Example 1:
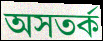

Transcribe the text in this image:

অসতর্ক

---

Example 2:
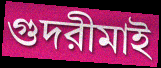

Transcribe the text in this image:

গুদরীমাই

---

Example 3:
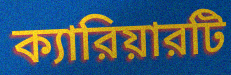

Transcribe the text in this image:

ক্যারিয়ারটি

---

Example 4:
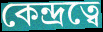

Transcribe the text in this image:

কেন্দ্রত্বে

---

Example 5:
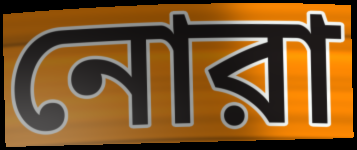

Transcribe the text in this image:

নোরা